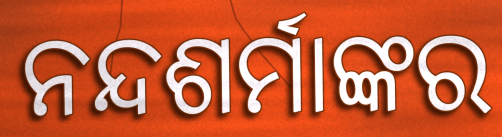
ନନ୍ଦଶର୍ମାଙ୍କର